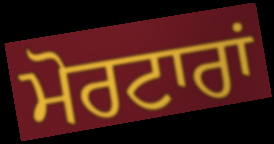
ਮੋਰਟਾਰਾਂ